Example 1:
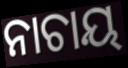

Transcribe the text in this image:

ନାଚାୟ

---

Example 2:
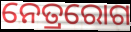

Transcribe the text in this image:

ନେତ୍ରରୋଗ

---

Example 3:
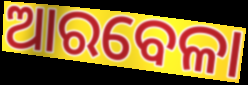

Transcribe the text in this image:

ଆରବେଳା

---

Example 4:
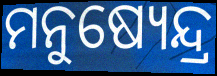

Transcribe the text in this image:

ମନୁଷ୍ୟେନ୍ଦ୍ର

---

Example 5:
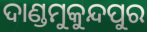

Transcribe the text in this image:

ଦାଣ୍ଡମୁକୁନ୍ଦପୁର